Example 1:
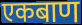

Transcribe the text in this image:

एकबाण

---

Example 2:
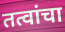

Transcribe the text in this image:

तत्वांचा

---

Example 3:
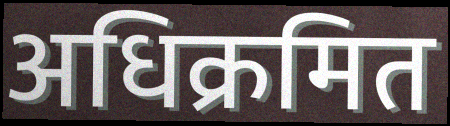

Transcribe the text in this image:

अधिक्रमित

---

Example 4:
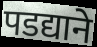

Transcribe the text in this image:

पडद्याने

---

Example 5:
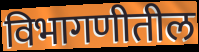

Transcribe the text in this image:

विभागणीतील